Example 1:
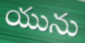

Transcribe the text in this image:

యును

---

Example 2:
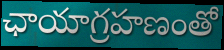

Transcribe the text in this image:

ఛాయాగ్రహణంతో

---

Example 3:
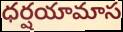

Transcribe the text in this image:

ధర్షయామాస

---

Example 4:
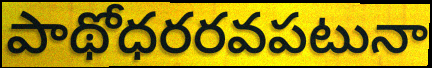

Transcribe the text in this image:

పాథోధరరవపటునా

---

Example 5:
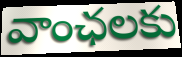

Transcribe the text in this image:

వాంఛలకు